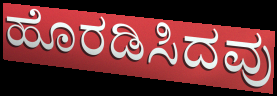
ಹೊರಡಿಸಿದವು